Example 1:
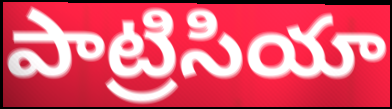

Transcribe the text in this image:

పాట్రిసియా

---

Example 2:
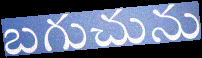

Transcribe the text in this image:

బగుచును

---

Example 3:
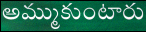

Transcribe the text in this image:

అమ్ముకుంటారు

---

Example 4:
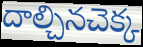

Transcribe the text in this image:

దాల్చినచెక్క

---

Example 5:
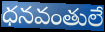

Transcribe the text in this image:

ధనవంతులే